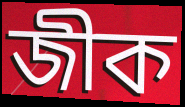
জীক